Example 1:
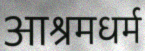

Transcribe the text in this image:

आश्रमधर्म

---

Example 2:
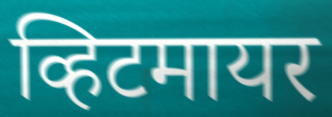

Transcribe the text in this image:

व्हिटमायर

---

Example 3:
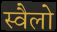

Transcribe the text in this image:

स्वैलो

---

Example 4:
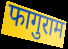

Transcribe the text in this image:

फागुराम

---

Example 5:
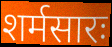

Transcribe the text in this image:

शर्मसारः